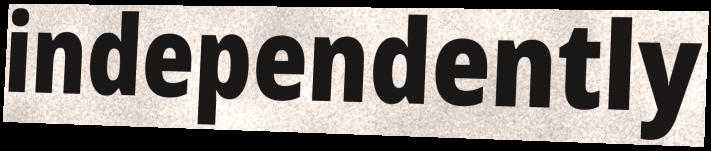
independently